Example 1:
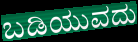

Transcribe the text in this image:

ಬಡಿಯುವದು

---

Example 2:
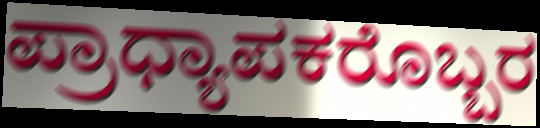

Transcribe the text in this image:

ಪ್ರಾಧ್ಯಾಪಕರೊಬ್ಬರ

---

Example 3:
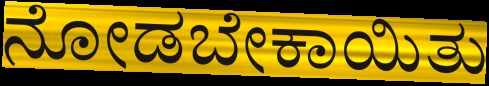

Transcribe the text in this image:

ನೋಡಬೇಕಾಯಿತು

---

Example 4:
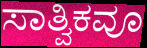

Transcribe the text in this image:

ಸಾತ್ವಿಕವೂ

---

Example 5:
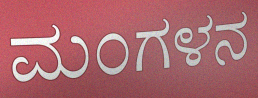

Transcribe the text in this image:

ಮಂಗಳನ